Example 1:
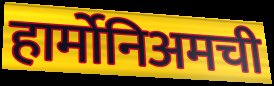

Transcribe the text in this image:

हार्मोनिअमची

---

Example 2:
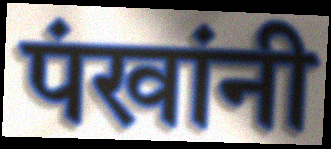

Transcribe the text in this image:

पंखांनी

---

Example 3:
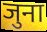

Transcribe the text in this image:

जुना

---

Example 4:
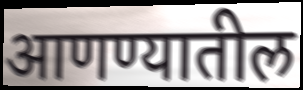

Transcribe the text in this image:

आणण्यातील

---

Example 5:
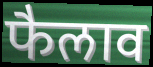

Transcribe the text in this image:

फैलाव